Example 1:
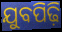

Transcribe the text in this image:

ଯୁବପିଢ଼ି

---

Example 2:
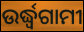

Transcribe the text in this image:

ଉର୍ଦ୍ଧ୍ୱଗାମୀ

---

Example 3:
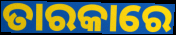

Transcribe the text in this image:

ତାରକାରେ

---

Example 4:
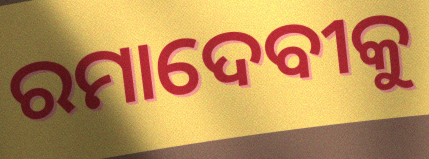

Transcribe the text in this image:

ରମାଦେବୀକୁ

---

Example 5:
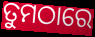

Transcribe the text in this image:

ତୁମଠାରେ